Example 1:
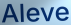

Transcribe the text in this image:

Aleve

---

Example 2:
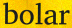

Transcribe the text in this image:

bolar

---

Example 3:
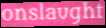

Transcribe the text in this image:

onslaught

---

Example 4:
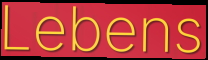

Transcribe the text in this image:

Lebens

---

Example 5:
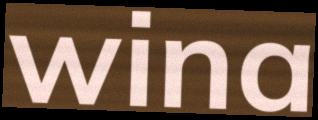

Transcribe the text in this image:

wina